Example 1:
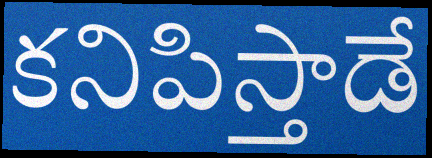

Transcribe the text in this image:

కనిపిస్తాడే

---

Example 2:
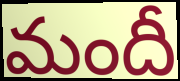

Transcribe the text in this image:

మందీ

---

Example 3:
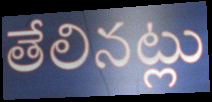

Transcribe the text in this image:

తేలినట్లు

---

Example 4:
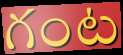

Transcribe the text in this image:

గంట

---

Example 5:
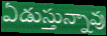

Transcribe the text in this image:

ఏడుస్తున్నావు